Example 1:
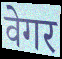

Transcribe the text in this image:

वेगर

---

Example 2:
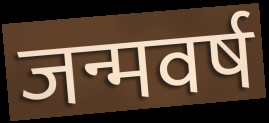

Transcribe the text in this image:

जन्मवर्ष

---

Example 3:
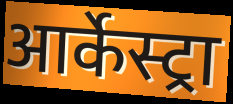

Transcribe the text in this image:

आर्केस्ट्रा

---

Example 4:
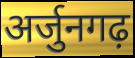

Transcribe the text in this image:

अर्जुनगढ़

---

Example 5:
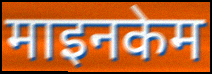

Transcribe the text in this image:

माइनकेम